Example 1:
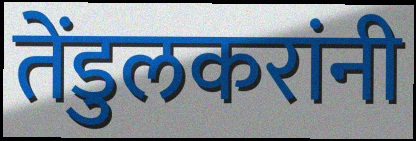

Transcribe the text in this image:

तेंडुलकरांनी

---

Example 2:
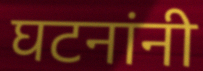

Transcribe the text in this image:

घटनांनी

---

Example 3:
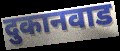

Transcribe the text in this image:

दुकानवाड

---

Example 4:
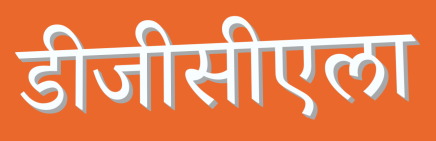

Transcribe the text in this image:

डीजीसीएला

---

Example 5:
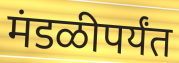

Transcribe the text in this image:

मंडळीपर्यंत